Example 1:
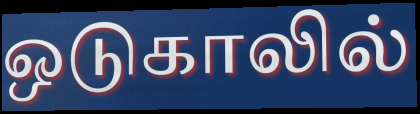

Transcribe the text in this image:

ஒடுகாலில்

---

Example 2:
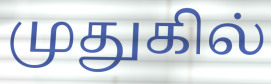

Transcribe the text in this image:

முதுகில்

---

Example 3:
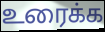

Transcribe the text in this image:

உரைக்க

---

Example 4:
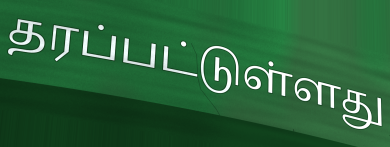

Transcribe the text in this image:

தரப்பட்டுள்ளது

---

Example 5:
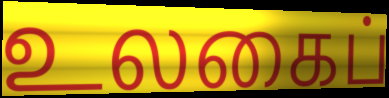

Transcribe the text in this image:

உலகைப்